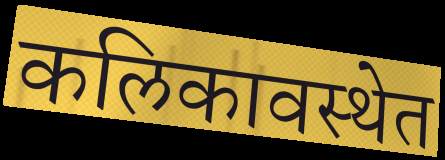
कलिकावस्थेत